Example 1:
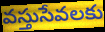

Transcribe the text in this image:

వస్తుసేవలకు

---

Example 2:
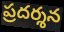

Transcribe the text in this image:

ప్రదర్శన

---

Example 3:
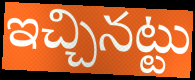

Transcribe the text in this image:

ఇచ్చినట్టు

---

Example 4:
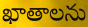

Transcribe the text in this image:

ఖాతాలను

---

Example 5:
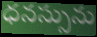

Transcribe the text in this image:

ధనస్సును